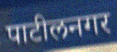
पाटीलनगर